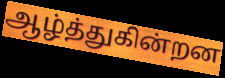
ஆழ்த்துகின்றன